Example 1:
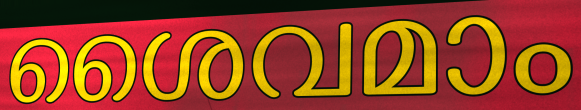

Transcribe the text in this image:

ശൈവമാം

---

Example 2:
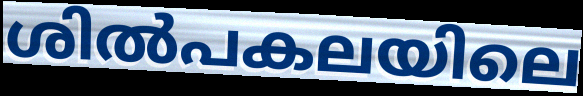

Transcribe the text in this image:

ശിൽപകലയിലെ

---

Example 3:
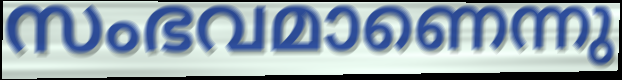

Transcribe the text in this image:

സംഭവമാണെന്നു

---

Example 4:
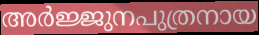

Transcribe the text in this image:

അർജ്ജുനപുത്രനായ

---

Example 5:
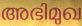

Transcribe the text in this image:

അഭിമുഖ